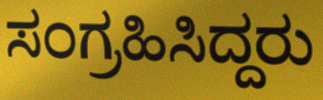
ಸಂಗ್ರಹಿಸಿದ್ದರು